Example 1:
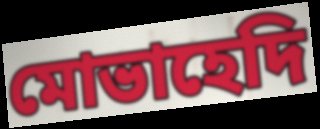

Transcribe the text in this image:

মোভাহেদি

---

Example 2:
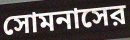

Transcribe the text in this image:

সোমনাসের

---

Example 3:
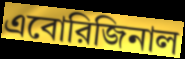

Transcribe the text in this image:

এবোরিজিনাল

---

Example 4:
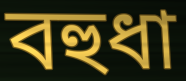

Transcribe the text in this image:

বহুধা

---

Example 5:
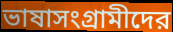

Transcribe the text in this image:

ভাষাসংগ্রামীদের